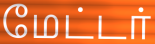
மேட்டர்